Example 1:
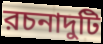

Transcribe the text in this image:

রচনাদুটি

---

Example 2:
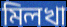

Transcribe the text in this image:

মিলখা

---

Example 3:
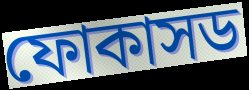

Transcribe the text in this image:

ফোকাসড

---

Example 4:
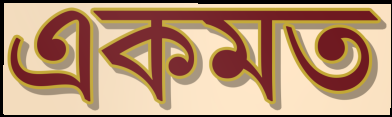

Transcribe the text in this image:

একমত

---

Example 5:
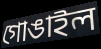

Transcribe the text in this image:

গোঙাইল